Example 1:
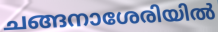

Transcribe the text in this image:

ചങ്ങനാശേരിയിൽ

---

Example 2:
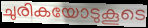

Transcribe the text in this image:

ചുരികയോടുകൂടെ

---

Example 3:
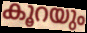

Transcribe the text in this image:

കൂറയും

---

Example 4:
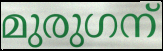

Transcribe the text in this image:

മുരുഗന്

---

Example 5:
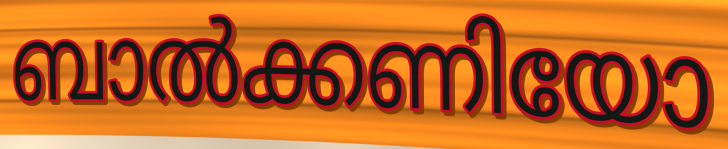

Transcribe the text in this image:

ബാൽക്കണിയോ